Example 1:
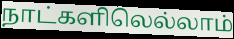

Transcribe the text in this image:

நாட்களிலெல்லாம்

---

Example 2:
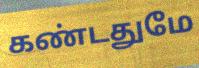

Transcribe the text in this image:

கண்டதுமே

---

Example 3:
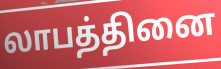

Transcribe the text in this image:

லாபத்தினை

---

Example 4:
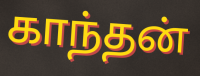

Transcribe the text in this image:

காந்தன்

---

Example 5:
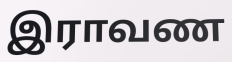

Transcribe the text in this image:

இராவண